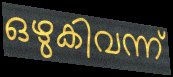
ഒഴുകിവന്ന്